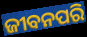
ଜୀବନପରି